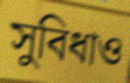
সুবিধাও